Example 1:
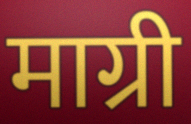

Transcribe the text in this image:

माग्री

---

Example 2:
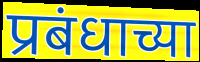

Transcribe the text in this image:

प्रबंधाच्या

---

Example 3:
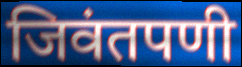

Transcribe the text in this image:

जिवंतपणी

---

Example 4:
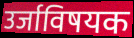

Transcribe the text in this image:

उर्जाविषयक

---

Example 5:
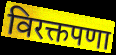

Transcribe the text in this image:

विरक्तपणा